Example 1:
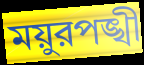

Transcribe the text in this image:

ময়ুরপঙ্খী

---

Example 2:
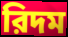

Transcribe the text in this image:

রিদম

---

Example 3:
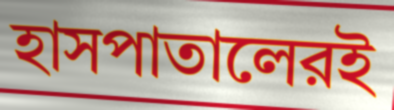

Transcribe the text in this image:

হাসপাতালেরই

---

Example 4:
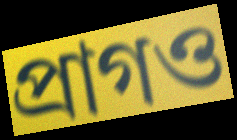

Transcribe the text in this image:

প্রাগও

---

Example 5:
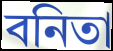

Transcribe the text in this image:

বনিতা